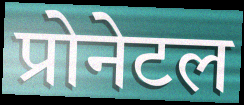
प्रोनेटल